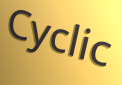
Cyclic